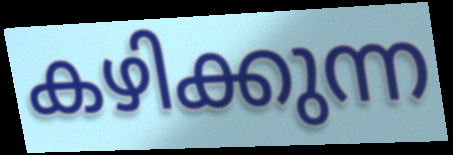
കഴിക്കുന്ന